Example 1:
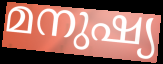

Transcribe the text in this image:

മനുഷ്യ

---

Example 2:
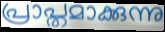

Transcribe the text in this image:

പ്രാപ്തമാക്കുന്നു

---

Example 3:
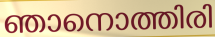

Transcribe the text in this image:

ഞാനൊത്തിരി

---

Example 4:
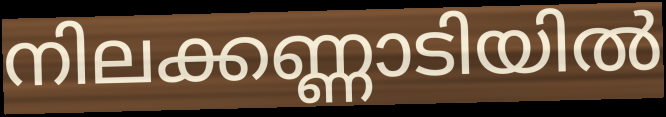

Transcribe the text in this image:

നിലക്കണ്ണാടിയിൽ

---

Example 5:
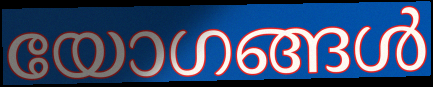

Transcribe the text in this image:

യോഗങ്ങൾ